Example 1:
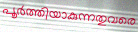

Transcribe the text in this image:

പൂർത്തിയാകുന്നതുവരെ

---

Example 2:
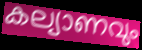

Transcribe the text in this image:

കല്യാണവും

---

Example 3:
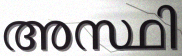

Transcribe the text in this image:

അസ്ഥി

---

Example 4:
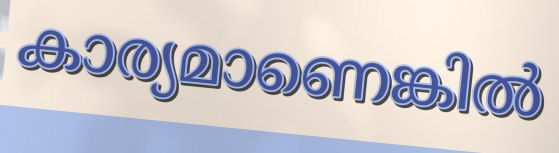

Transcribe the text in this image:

കാര്യമാണെങ്കിൽ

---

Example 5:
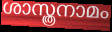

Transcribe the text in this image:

ശാസ്ത്രനാമം